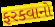
ફરકવાનો